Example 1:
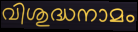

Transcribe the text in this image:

വിശുദ്ധനാമം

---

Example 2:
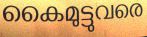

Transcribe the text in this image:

കൈമുട്ടുവരെ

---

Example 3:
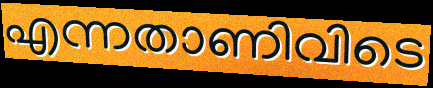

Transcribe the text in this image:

എന്നതാണിവിടെ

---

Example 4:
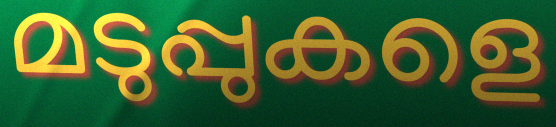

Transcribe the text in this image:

മടുപ്പുകളെ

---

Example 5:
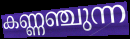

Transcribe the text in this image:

കണ്ണഞ്ചുന്ന